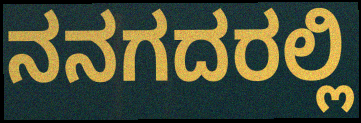
ನನಗದರಲ್ಲಿ